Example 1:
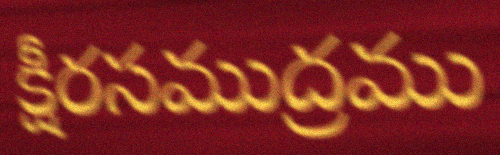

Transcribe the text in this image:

క్షీరసముద్రము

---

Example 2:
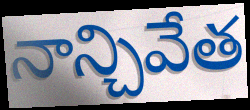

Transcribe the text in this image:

నాన్చివేత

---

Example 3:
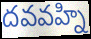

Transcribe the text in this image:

దవవహ్ని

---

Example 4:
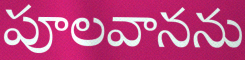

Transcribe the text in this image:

పూలవానను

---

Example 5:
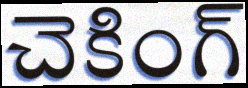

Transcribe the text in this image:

చెకింగ్